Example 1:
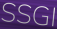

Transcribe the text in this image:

SSGI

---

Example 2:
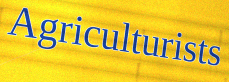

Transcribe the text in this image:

Agriculturists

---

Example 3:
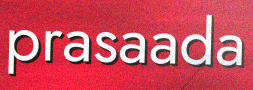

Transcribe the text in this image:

prasaada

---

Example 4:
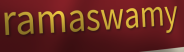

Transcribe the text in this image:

ramaswamy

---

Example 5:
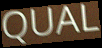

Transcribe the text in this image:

QUAL